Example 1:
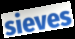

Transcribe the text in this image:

sieves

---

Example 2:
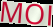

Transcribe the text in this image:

MOI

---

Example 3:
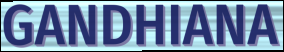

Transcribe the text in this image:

GANDHIANA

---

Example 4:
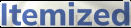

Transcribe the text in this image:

Itemized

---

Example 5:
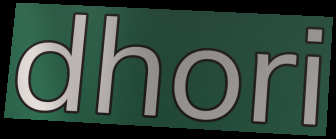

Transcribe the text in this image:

dhori